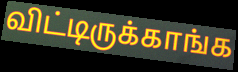
விட்டிருக்காங்க